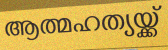
ആത്മഹത്യയ്ക്ക്